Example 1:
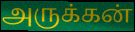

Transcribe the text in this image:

அருக்கன்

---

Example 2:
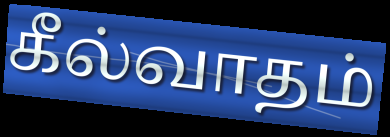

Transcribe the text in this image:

கீல்வாதம்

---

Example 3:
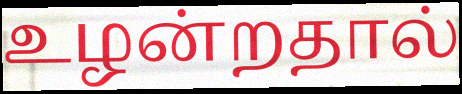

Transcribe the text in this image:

உழன்றதால்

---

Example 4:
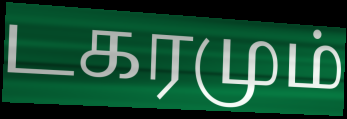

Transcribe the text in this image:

டகரமும்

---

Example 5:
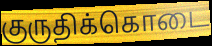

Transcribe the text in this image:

குருதிக்கொடை